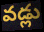
వడ్లు